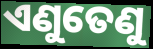
ଏଣୁତେଣୁ